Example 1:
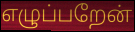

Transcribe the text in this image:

எழுப்பறேன்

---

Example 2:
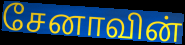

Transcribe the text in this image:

சேனாவின்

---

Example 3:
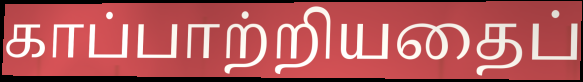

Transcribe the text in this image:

காப்பாற்றியதைப்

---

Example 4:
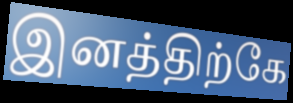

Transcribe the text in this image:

இனத்திற்கே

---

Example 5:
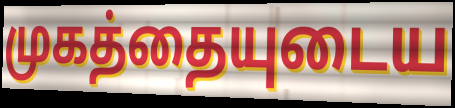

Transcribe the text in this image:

முகத்தையுடைய